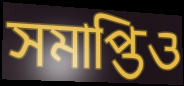
সমাপ্তিও